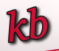
kb